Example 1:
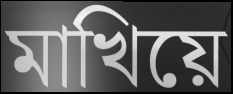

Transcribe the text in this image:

মাখিয়ে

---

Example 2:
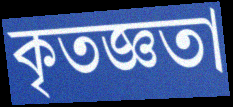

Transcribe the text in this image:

কৃতজ্ঞতা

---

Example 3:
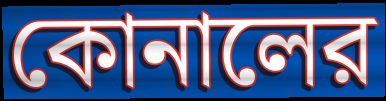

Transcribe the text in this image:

কোনালের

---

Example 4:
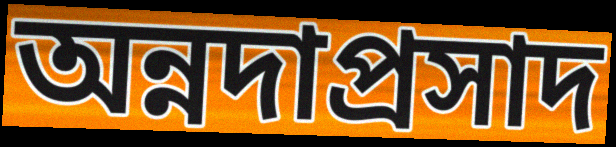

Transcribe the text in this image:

অন্নদাপ্রসাদ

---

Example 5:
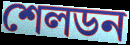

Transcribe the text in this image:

শেলডন